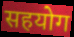
सहयोग